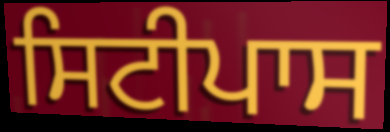
ਸਿਟੀਪਾਸ